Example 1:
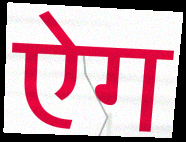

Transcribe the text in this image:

ऐग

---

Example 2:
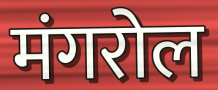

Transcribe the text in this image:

मंगरोल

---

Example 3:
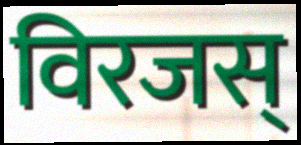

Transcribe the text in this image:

विरजस्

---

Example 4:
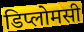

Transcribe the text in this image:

डिप्लोमसी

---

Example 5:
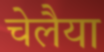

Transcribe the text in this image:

चेलैया